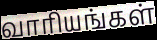
வாரியங்கள்